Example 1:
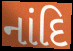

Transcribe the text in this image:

નાંદિ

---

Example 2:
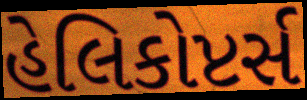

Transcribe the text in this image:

હેલિકોપ્ટર્સ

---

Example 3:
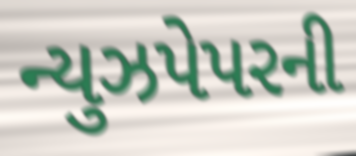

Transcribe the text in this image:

ન્યુઝપેપરની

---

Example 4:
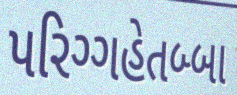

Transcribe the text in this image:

પરિગ્ગહેતબ્બા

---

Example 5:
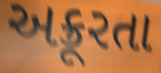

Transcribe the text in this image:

અક્રૂરતા